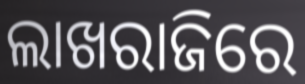
ଲାଖରାଜିରେ